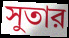
সুতার